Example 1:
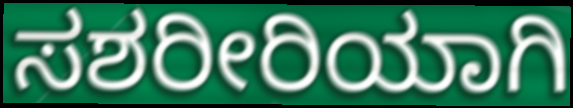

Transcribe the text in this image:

ಸಶರೀರಿಯಾಗಿ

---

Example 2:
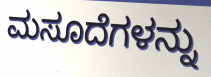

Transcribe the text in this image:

ಮಸೂದೆಗಳನ್ನು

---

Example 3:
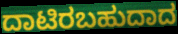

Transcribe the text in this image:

ದಾಟಿರಬಹುದಾದ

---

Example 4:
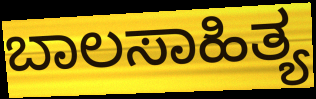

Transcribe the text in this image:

ಬಾಲಸಾಹಿತ್ಯ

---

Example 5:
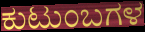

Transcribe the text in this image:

ಕುಟುಂಬಗಳ